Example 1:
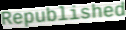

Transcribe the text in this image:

Republished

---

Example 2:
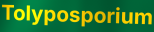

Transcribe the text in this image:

Tolyposporium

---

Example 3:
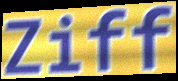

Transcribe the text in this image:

Ziff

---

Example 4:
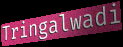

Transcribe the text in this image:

Tringalwadi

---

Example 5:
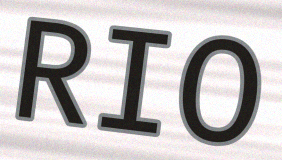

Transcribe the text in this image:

RIO